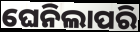
ଘେନିଲାପରି